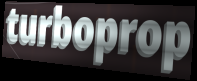
turboprop